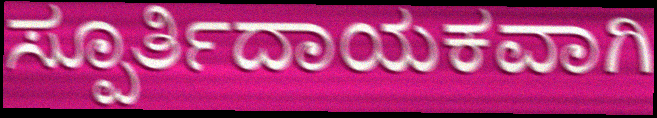
ಸ್ಪೂರ್ತಿದಾಯಕವಾಗಿ